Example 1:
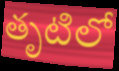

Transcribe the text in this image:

తృటిలో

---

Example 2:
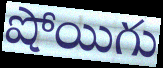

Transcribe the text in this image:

షోయిగు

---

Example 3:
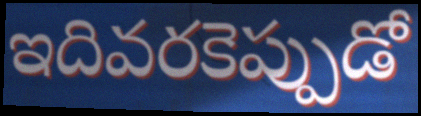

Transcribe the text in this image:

ఇదివరకెప్పుడో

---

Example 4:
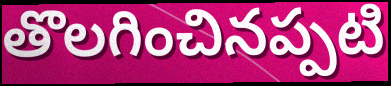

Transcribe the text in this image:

తొలగించినప్పటి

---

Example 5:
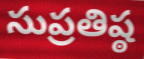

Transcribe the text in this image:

సుప్రతిష్ఠ